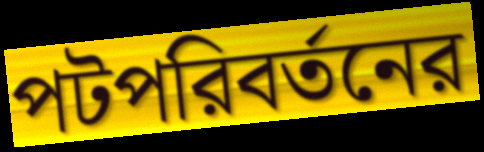
পটপরিবর্তনের